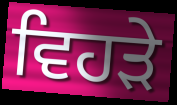
ਵਿਹੜੇ